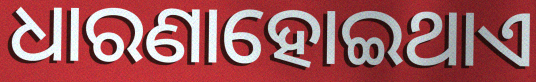
ଧାରଣାହୋଇଥାଏ